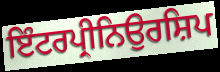
ਇੰਟਰਪ੍ਰੀਨਿਉਰਸ਼ਿਪ